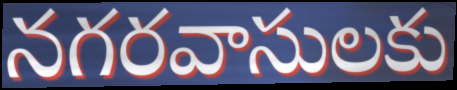
నగరవాసులకు